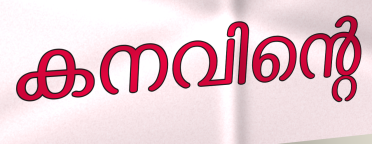
കനവിന്റെ